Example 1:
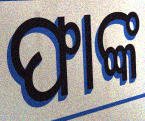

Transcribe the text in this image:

ଫାଙ୍କ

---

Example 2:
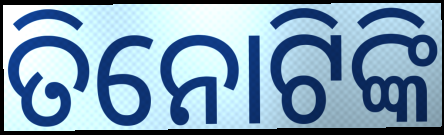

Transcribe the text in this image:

ତିନୋଟିଙ୍କି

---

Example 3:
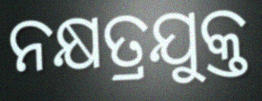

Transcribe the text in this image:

ନକ୍ଷତ୍ରଯୁକ୍ତ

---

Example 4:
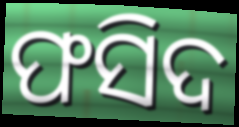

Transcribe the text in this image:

ଫସିଦ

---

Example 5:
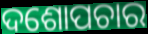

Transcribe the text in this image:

ଦଶୋପଚାର